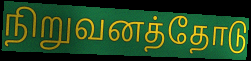
நிறுவனத்தோடு